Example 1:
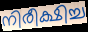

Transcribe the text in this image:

നിരീക്ഷിച്ച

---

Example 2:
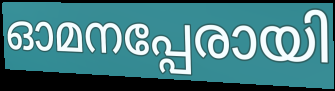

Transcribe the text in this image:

ഓമനപ്പേരായി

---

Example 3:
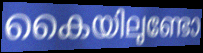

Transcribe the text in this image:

കൈയിലുണ്ടോ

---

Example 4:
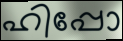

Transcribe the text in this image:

ഹിപ്പോ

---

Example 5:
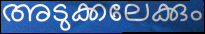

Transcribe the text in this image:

അടുക്കലേക്കും